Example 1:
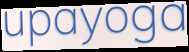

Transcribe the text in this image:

upayoga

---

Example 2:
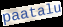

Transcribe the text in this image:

paatalu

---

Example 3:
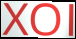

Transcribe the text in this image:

XOI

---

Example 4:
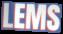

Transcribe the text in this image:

LEMS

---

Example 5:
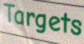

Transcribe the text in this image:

Targets